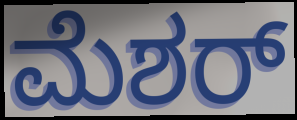
ಮೆಶರ್